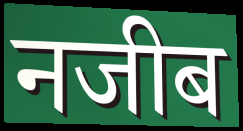
नजीब